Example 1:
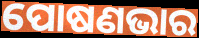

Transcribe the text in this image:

ପୋଷଣଭାର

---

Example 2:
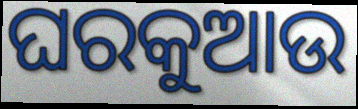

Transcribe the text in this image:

ଘରକୁଆଉ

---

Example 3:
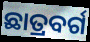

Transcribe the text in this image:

ଛାତ୍ରବର୍ଗ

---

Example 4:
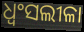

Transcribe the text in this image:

ଧ୍ୱଂସଲୀଳା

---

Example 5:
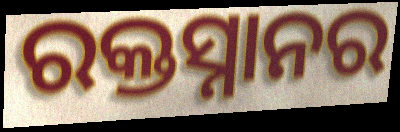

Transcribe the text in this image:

ରକ୍ତସ୍ନାନର